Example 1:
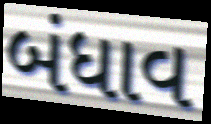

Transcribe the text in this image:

બંધાવ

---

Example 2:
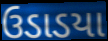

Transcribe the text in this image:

ઉડાડયા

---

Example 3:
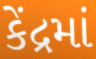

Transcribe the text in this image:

કેંદ્રમાં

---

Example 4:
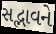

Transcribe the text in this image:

સદ્ભાવને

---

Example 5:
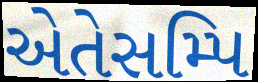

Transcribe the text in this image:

એતેસમ્પિ